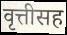
वृत्तीसह